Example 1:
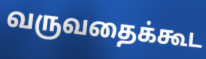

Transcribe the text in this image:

வருவதைக்கூட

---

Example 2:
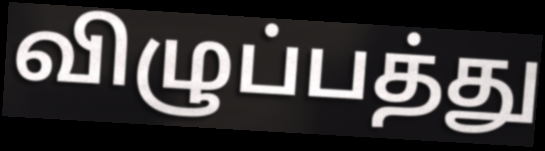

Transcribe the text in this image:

விழுப்பத்து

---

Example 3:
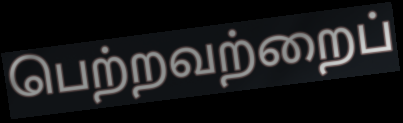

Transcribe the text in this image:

பெற்றவற்றைப்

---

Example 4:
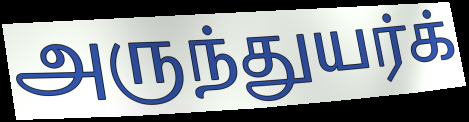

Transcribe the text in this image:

அருந்துயர்க்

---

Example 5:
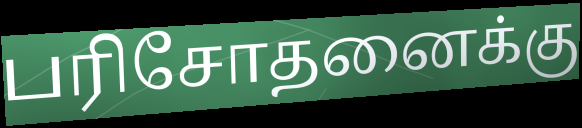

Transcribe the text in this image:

பரிசோதனைக்கு